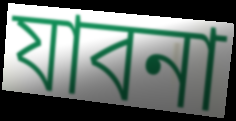
যাবনা